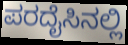
ಪರದೈಸಿನಲ್ಲಿ